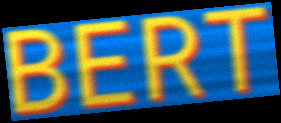
BERT